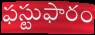
ఫస్టుఫారం